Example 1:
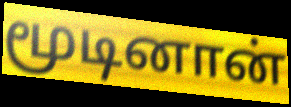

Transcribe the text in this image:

மூடினான்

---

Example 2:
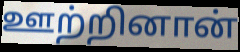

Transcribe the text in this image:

ஊற்றினான்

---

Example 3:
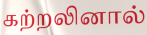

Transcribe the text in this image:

கற்றலினால்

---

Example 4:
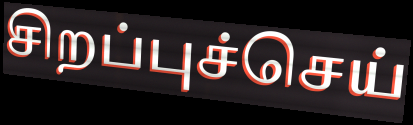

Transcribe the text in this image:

சிறப்புச்செய்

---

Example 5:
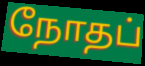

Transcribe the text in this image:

நோதப்